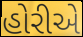
હોરીએ